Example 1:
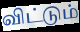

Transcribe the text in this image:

விட்டும்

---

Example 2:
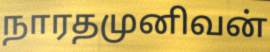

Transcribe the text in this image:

நாரதமுனிவன்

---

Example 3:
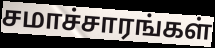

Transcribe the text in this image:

சமாச்சாரங்கள்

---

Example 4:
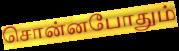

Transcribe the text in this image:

சொன்னபோதும்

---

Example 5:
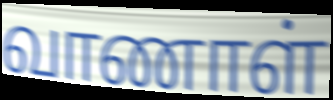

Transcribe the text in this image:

வாணாள்